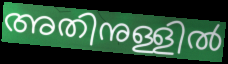
അതിനുള്ളിൽ